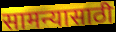
सामन्यासाठी